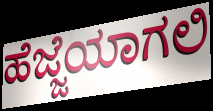
ಹೆಜ್ಜೆಯಾಗಲಿ